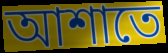
আশাতে